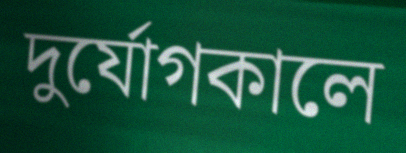
দুর্যোগকালে